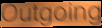
Outgoing